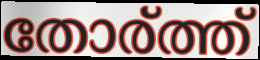
തോര്ത്ത്